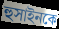
হুসাইনকে